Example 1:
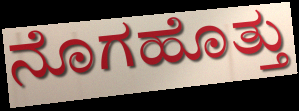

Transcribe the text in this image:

ನೊಗಹೊತ್ತು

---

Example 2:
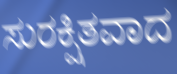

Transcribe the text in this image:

ಸುರಕ್ಷಿತವಾದ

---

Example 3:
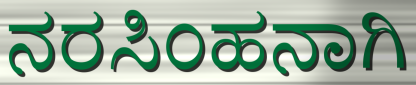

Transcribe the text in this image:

ನರಸಿಂಹನಾಗಿ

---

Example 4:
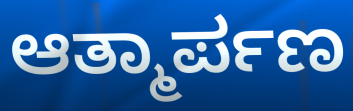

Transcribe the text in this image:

ಆತ್ಮಾರ್ಪಣ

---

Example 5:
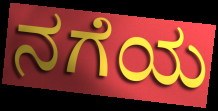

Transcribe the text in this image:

ನಗೆಯ